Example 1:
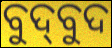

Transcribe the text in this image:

ବୁଦ୍‍ବୁଦ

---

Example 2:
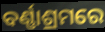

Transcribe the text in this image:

ବର୍ଣ୍ଣାଶ୍ରମରେ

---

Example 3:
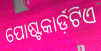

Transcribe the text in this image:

ପୋଷ୍ଟକାର୍ଡ଼ଟିଏ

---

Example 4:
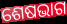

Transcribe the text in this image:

ଶେଷଭାଗ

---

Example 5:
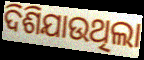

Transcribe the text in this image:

ଦିଶିଯାଉଥିଲା